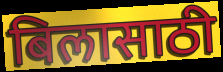
बिलासाठी